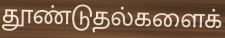
தூண்டுதல்களைக்